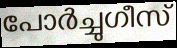
പോർച്ചുഗീസ്